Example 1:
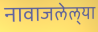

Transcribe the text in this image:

नावाजलेल्या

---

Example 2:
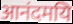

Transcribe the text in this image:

आनंदमयि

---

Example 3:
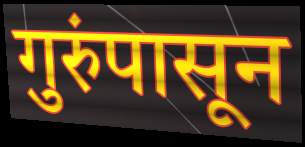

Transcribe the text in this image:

गुरुंपासून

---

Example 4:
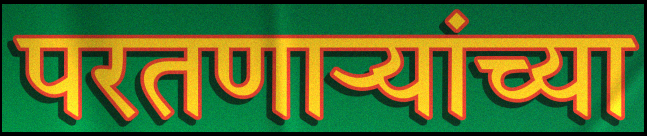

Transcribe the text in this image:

परतणाऱ्यांच्या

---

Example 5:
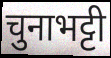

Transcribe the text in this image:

चुनाभट्टी